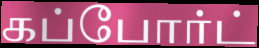
கப்போர்ட்